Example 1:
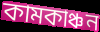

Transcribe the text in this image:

কামকাঞ্চন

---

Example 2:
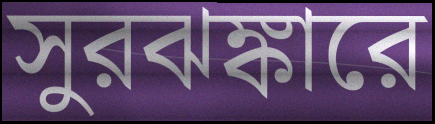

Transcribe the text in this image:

সুরঝঙ্কারে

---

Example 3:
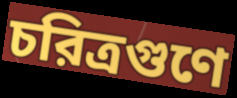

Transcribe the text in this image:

চরিত্রগুণে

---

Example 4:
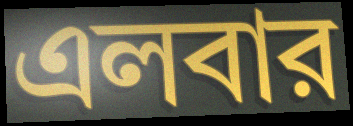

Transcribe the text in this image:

এলবার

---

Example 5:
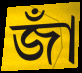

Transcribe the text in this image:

জাঁ